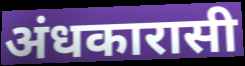
अंधकारासी